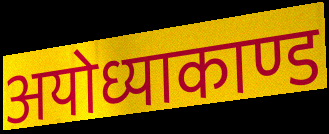
अयोध्याकाण्ड